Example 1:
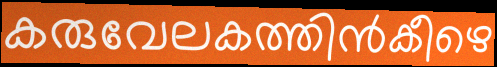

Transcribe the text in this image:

കരുവേലകത്തിൻകീഴെ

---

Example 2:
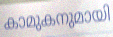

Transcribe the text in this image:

കാമുകനുമായി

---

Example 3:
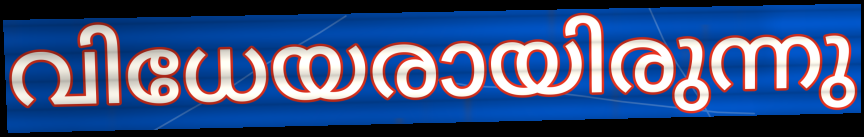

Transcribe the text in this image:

വിധേയരായിരുന്നു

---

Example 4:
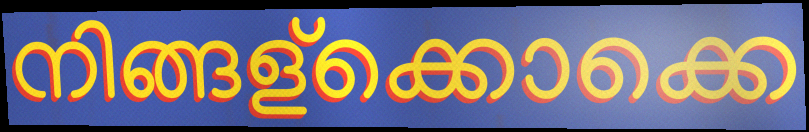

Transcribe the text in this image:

നിങ്ങള്ക്കൊക്കെ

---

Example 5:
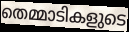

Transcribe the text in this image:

തെമ്മാടികളുടെ